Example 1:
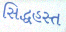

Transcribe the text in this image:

સિદ્ધહસ્ત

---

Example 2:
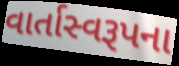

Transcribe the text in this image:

વાર્તાસ્વરૂપના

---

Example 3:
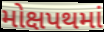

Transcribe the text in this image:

મોક્ષપથમાં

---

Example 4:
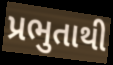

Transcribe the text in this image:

પ્રભુતાથી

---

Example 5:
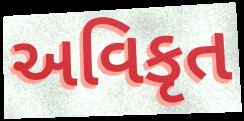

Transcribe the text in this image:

અવિકૃત